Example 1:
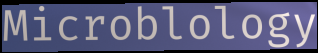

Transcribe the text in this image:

Microblology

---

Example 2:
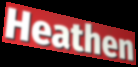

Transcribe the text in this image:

Heathen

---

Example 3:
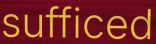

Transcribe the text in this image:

sufficed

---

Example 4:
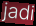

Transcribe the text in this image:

jadi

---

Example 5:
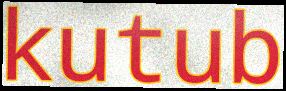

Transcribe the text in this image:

kutub